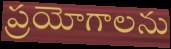
ప్రయోగాలను